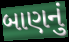
બાણનું